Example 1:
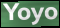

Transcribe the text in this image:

Yoyo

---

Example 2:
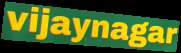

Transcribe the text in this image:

vijaynagar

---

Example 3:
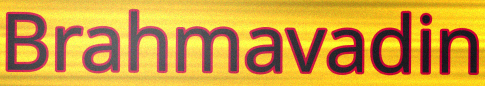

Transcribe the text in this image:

Brahmavadin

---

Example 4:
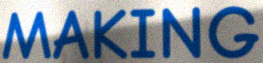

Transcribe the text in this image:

MAKING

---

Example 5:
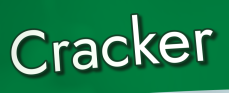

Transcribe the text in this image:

Cracker